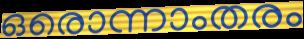
ഒരൊന്നാംതരം